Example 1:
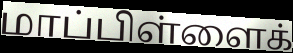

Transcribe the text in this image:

மாப்பிள்ளைக்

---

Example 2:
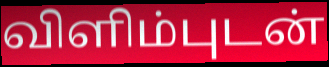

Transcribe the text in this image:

விளிம்புடன்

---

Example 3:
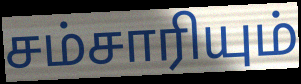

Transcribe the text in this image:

சம்சாரியும்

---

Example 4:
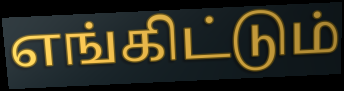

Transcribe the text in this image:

எங்கிட்டும்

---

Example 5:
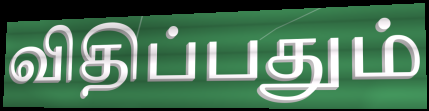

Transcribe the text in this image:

விதிப்பதும்